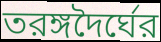
তরঙ্গদৈর্ঘের